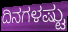
ದಿನಗಳಷ್ಟು